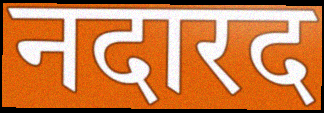
नदारद